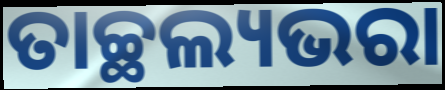
ତାଚ୍ଛଲ୍ୟଭରା